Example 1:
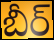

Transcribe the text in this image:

బీర్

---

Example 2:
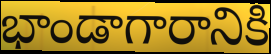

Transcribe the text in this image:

భాండాగారానికి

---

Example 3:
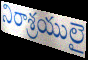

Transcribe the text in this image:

నిరాశ్రయులై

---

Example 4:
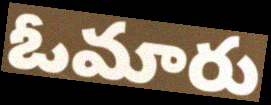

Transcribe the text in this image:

ఓమారు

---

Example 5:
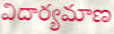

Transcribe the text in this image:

విదార్యమాణ